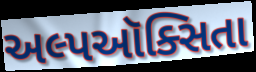
અલ્પઑક્સિતા